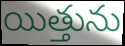
యిత్తును